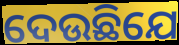
ଦେଉଛିଯେ